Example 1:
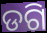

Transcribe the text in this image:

ଡଗି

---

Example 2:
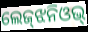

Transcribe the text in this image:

ଲେଜ୍‌ଝନିଓଭ୍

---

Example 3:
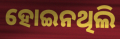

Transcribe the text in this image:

ହୋଇନଥିଲି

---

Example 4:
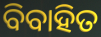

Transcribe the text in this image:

ବିବାହିତ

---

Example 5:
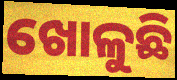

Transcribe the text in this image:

ଖୋଳୁଛି